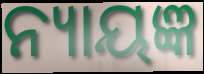
ନ୍ୟାୟଜ୍ଞ